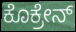
ಕೊಕ್ರೇನ್